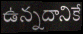
ఉన్నదానికే